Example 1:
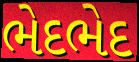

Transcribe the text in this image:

ભેદભેદ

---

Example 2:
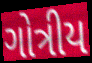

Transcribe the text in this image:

ગોત્રીય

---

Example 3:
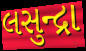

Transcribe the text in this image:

લસુન્દ્રા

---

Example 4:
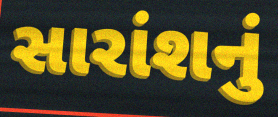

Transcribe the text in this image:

સારાંશનું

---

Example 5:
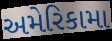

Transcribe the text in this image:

અમેરિકામા